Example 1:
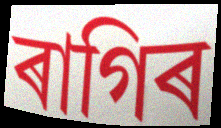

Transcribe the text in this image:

ৰাগিৰ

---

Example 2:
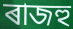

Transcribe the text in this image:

ৰাজহু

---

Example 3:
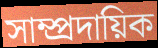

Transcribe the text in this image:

সাম্প্ৰদায়িক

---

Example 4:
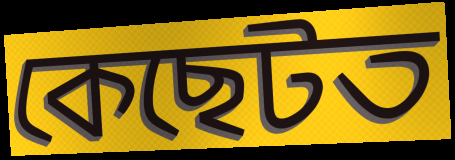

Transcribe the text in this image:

কেছেটত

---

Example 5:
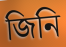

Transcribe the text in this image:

জিনি